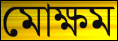
মোক্ষম